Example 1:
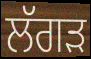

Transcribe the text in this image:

ਲੱਗੜ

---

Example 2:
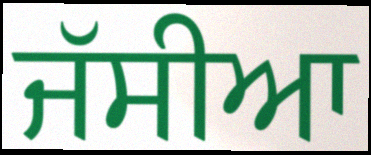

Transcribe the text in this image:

ਜੱਸੀਆ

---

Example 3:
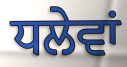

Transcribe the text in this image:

ਧਲੇਵਾਂ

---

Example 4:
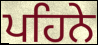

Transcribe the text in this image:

ਪਹਿਨੇ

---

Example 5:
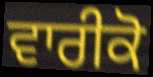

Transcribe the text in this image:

ਵਾਰੀਕੋ